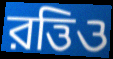
রত্তিও